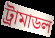
ট্রামাডল